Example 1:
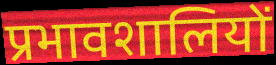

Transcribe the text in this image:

प्रभावशालियों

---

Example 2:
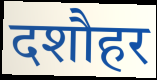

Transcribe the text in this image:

दशौहर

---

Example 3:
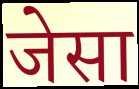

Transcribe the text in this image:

जेसा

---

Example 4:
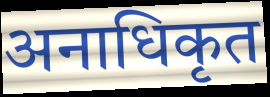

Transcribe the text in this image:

अनाधिकृत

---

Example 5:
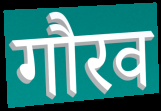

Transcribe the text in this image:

गौरव